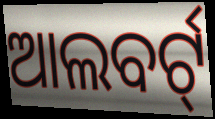
ଆଲବର୍ଟ୍